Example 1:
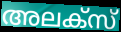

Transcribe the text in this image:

അലക്സ്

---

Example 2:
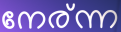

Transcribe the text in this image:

നേര്ന്ന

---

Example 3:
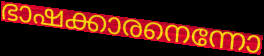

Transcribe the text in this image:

ഭാഷക്കാരനെന്നോ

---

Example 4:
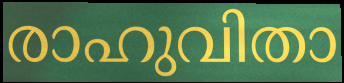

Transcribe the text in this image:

രാഹുവിതാ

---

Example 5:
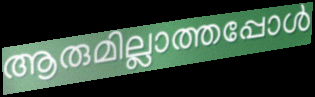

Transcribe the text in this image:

ആരുമില്ലാത്തപ്പോൾ